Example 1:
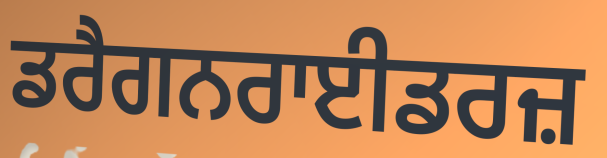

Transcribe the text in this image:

ਡਰੈਗਨਰਾਈਡਰਜ਼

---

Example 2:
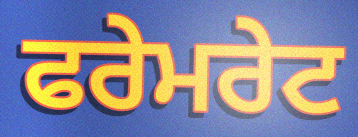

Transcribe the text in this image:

ਫਰੇਮਰੇਟ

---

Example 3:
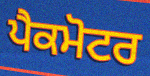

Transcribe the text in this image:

ਪੈਕਮੋਟਰ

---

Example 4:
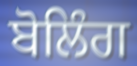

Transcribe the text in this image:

ਬੋਲਿੰਗ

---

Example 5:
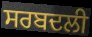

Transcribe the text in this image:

ਸਰਬਦਲੀ